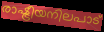
രാഷ്ട്രീയനിലപാട്